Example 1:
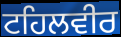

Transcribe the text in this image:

ਟਹਿਲਵੀਰ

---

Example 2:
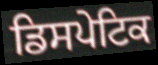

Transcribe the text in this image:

ਡਿਸਪੇਟਿਕ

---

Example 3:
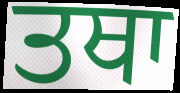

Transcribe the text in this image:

ਤਥਾ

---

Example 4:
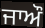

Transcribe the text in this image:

ਜਾਔ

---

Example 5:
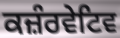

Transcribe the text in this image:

ਕਜ਼ੰਰਵੇਟਿਵ